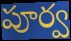
పూర్వ